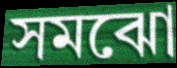
সমঝো